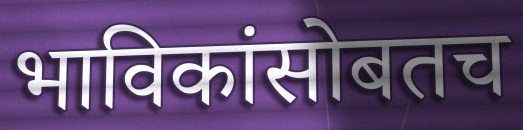
भाविकांसोबतच